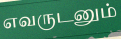
எவருடனும்